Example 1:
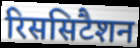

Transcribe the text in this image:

रिससिटैशन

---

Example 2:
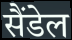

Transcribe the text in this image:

सैंडेल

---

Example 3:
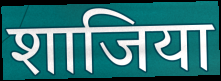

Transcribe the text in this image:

शाजिया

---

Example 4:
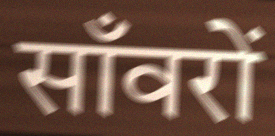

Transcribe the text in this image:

साँवरों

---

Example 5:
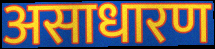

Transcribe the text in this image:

असाधारण